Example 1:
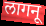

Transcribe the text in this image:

लागनू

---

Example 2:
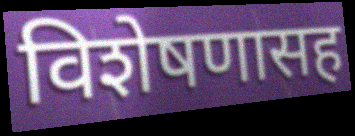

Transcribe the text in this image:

विशेषणासह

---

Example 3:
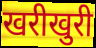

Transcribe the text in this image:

खरीखुरी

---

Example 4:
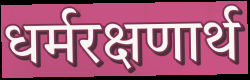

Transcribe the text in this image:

धर्मरक्षणार्थ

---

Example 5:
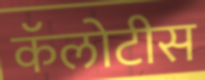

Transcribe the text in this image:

कॅलोटीस